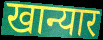
खान्यार